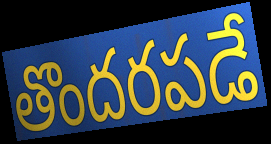
తొందరపడే